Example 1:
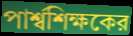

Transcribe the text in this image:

পার্শ্বশিক্ষকের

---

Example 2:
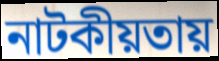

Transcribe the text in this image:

নাটকীয়তায়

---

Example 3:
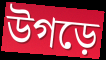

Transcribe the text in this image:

উগড়ে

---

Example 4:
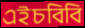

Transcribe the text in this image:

এইচবিবি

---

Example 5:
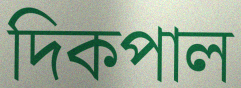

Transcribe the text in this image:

দিকপাল